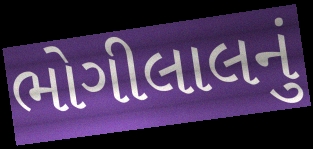
ભોગીલાલનું